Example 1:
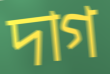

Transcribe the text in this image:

দাগ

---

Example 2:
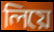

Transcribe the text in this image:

লিয়ে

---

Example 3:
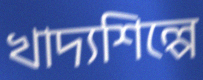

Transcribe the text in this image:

খাদ্যশিল্পে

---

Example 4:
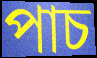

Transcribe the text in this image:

পাচ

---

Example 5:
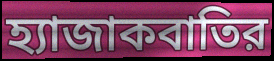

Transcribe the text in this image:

হ্যাজাকবাতির